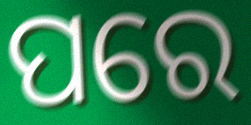
ପରେ